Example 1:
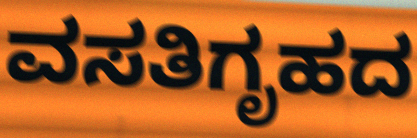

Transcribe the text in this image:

ವಸತಿಗೃಹದ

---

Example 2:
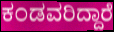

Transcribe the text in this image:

ಕಂಡವರಿದ್ದಾರೆ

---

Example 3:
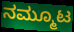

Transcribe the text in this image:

ನಮ್ಮೂಟ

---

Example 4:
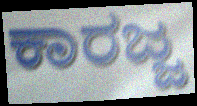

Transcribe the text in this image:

ಕಾರಜ್ಜ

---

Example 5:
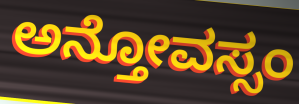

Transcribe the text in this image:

ಅನ್ತೋವಸ್ಸಂ